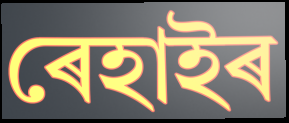
ৰেহাইৰ